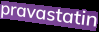
pravastatin